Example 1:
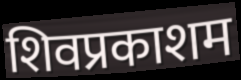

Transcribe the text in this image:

शिवप्रकाशम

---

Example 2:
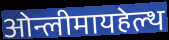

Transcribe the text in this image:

ओन्लीमायहेल्थ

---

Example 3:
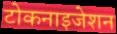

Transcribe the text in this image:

टोकनाइजेशन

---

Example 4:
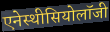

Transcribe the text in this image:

एनेस्थीसियोलॉजी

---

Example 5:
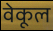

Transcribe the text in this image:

वेकूल